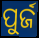
ପୁର୍ଜ